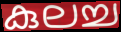
കുലച്ച